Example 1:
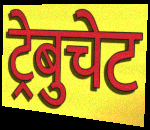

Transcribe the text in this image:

ट्रेबुचेट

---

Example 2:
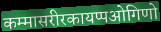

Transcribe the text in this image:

कम्मासरीरकायप्पओगिणो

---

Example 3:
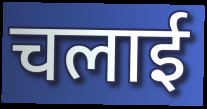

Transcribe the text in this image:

चलाई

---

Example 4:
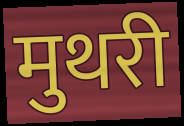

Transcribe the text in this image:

मुथरी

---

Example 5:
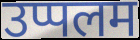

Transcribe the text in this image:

उप्पलम